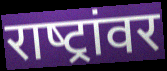
राष्ट्रांवर